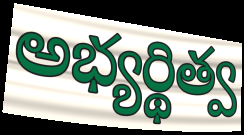
అభ్యర్థిత్వ